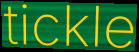
tickle